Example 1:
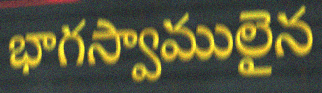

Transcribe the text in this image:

భాగస్వాములైన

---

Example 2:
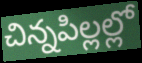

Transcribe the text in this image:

చిన్నపిల్లల్లో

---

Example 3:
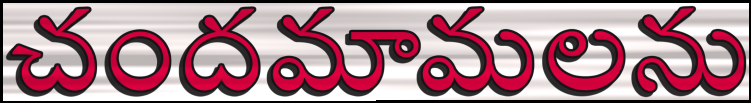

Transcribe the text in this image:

చందమామలను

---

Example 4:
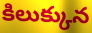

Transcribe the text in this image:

కిలుక్కున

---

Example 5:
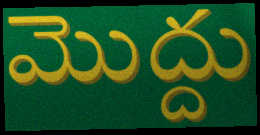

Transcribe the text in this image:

మొద్దు